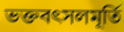
ভক্তবৎসলমূর্তি